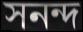
সনন্দ